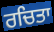
ਰਚਿਤਾ